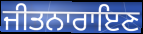
ਜੀਤਨਾਰਾਇਣ